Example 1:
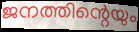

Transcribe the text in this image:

ജനത്തിന്റെയും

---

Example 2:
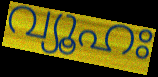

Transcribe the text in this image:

വ്യൂഹഃ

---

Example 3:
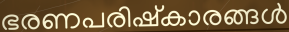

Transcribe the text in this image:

ഭരണപരിഷ്കാരങ്ങൾ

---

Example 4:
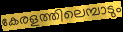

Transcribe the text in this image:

കേരളത്തിലെമ്പാടും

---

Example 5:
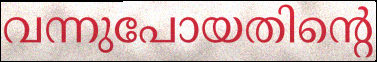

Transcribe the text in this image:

വന്നുപോയതിന്റെ